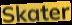
Skater